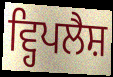
ਵ੍ਹਿਪਲੈਸ਼